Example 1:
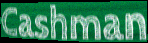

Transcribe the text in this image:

Cashman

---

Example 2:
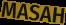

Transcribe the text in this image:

MASAH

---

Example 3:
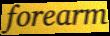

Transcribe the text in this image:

forearm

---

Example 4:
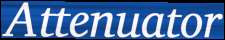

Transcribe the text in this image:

Attenuator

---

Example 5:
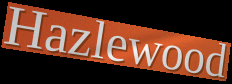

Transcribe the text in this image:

Hazlewood